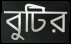
বুটির